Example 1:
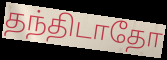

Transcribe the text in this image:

தந்திடாதோ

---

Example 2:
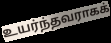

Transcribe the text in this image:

உயர்ந்தவராகக்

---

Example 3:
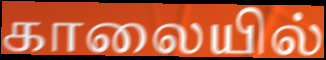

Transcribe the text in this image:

காலையில்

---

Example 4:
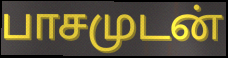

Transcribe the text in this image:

பாசமுடன்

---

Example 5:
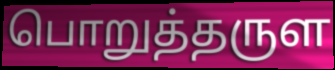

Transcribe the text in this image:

பொறுத்தருள